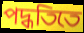
পদ্ধতিতে